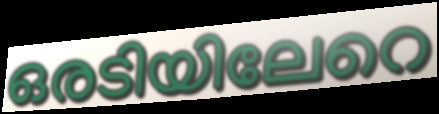
ഒരടിയിലേറെ